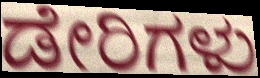
ಡೇರಿಗಳು